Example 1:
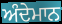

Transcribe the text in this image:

ਅੰਦੇਮਾਨ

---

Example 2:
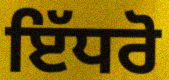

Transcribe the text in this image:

ਇੱਧਰੋ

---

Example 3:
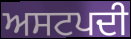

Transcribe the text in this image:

ਅਸਟਪਦੀ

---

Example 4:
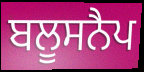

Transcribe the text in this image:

ਬਲੂਸਨੈਪ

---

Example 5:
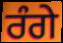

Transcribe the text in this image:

ਰੰਗੇ